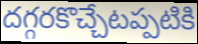
దగ్గరకొచ్చేటప్పటికి